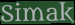
Simak